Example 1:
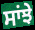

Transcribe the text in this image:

ਸਾਂਝੇ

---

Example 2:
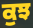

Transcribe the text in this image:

ਕੁਝ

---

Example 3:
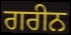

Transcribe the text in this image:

ਗਰੀਨ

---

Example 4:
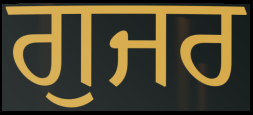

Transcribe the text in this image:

ਗੁਜਰ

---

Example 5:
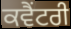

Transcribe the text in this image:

ਕਵੈਂਟਰੀ